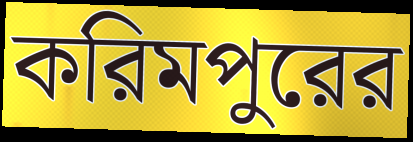
করিমপুরের